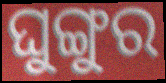
ଘୁଙ୍ଗୁର